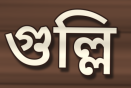
গুল্লি